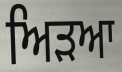
ਅਿੜਆ